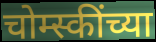
चोम्स्कींच्या